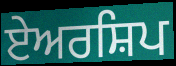
ਏਅਰਸ਼ਿਪ